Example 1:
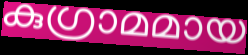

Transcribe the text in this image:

കുഗ്രാമമായ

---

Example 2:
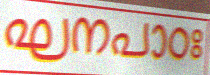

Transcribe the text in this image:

ഘനപാഠഃ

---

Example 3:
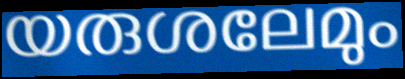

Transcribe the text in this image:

യരുശലേമും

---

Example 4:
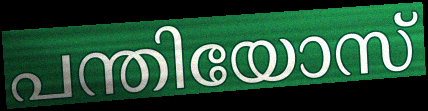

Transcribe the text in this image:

പന്തിയോസ്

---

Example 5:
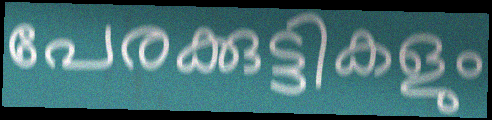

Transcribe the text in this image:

പേരക്കുട്ടികളും